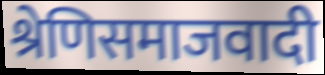
श्रेणिसमाजवादी